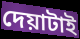
দেয়াটাই